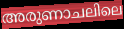
അരുണാചലിലെ